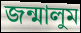
জন্মালুম